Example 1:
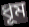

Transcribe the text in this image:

ধূম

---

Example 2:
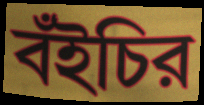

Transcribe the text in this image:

বঁইচির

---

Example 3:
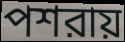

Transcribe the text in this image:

পশরায়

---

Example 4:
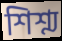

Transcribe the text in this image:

শিশ্ম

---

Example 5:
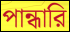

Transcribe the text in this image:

পান্ধারি